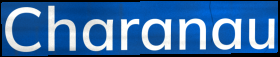
Charanau